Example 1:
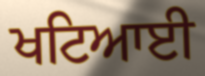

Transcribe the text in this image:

ਖਟਿਆਈ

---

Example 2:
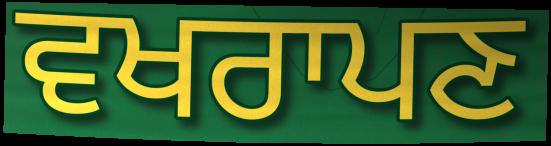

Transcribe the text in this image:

ਵਖਰਾਪਣ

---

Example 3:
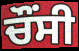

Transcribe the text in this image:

ਚੌਂਸੀ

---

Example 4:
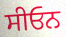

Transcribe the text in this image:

ਸੀਓਨ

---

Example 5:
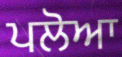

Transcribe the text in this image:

ਪਲੋਆ